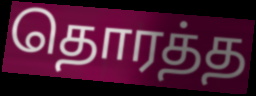
தொரத்த